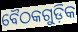
ବୈଠକଗୁଡ଼ିକ